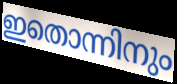
ഇതൊന്നിനും